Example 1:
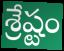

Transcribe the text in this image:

శ్రేష్టం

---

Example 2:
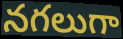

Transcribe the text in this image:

నగలుగా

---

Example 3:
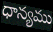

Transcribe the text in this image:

ధాన్యము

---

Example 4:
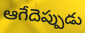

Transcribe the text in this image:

ఆగేదెప్పుడు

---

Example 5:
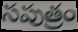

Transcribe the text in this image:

సపుత్రం